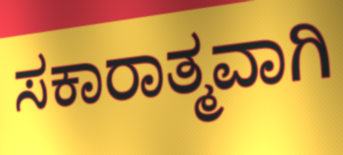
ಸಕಾರಾತ್ಮವಾಗಿ